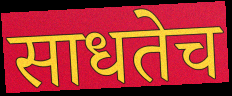
साधतेच